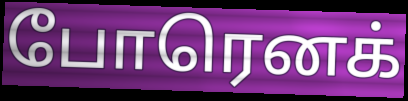
போரெனக்